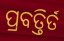
ପ୍ରବତ୍ତିର୍ତ